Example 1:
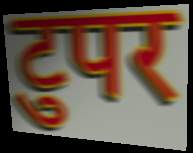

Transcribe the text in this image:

टुपर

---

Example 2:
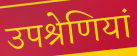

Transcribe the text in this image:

उपश्रेणियां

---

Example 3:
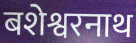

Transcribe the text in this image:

बशेश्वरनाथ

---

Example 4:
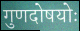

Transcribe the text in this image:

गुणदोषयोः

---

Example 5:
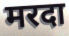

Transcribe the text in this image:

मरदा